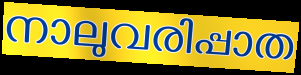
നാലുവരിപ്പാത